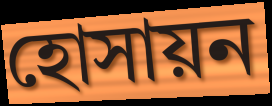
হোসায়ন